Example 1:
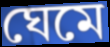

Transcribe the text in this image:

ঘেমে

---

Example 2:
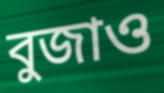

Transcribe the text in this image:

বুজাও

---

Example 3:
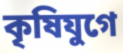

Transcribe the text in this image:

কৃষিযুগে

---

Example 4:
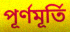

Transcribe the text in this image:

পূর্ণমূর্তি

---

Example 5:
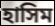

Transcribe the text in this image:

হাসিম